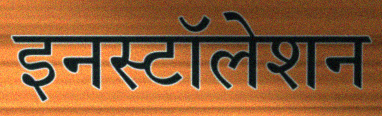
इनस्टॉलेशन